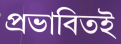
প্রভাবিতই